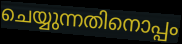
ചെയ്യുന്നതിനൊപ്പം